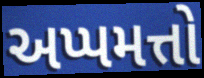
અપ્પમત્તો